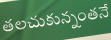
తలచుకున్నంతనే